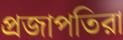
প্রজাপতিরা